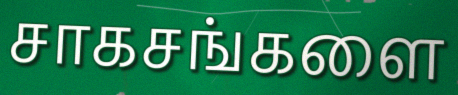
சாகசங்களை